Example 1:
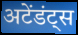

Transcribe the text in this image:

अटेंडंट्स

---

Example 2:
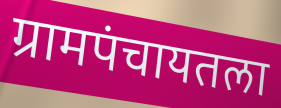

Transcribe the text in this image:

ग्रामपंचायतला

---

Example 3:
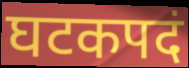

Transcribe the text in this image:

घटकपदं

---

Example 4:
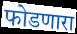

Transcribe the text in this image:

फोडणारा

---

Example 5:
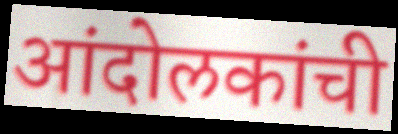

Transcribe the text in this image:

आंदोलकांची